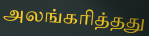
அலங்கரித்தது